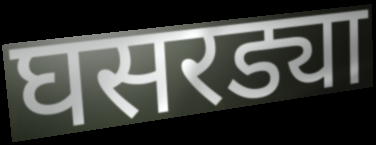
घसरड्या